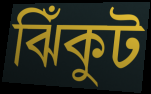
ঝিঁকুট